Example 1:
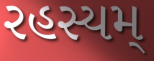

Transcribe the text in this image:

રહસ્યમ્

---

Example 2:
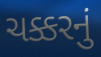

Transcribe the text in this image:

ચક્કરનું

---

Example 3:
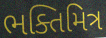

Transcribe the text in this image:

ભક્તિમિત્ર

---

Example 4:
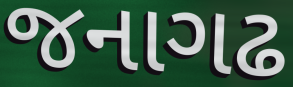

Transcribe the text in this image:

જનાગઢ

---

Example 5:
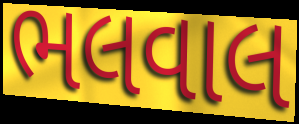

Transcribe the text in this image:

ભલવાલ